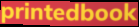
printedbook